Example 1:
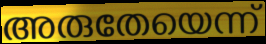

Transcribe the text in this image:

അരുതേയെന്ന്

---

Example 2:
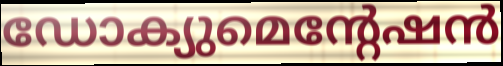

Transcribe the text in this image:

ഡോക്യുമെന്റേഷൻ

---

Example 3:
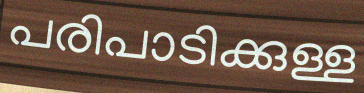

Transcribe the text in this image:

പരിപാടിക്കുള്ള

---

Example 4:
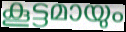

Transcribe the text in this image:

കൂട്ടമായും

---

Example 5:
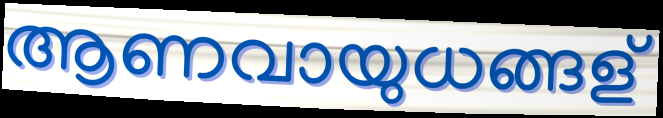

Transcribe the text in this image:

ആണവായുധങ്ങള്